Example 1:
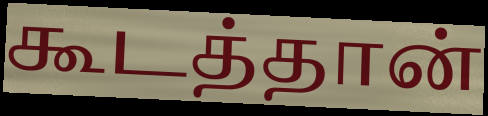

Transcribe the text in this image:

கூடத்தான்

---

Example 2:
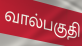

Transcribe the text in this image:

வால்பகுதி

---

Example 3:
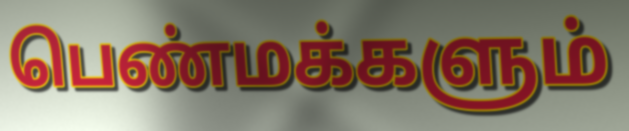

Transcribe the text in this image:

பெண்மக்களும்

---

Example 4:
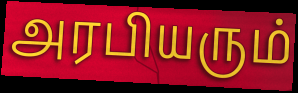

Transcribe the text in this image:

அரபியரும்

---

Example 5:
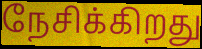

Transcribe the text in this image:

நேசிக்கிறது